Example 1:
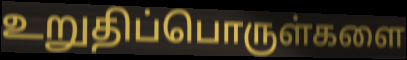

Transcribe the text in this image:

உறுதிப்பொருள்களை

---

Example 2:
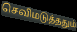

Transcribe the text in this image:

செவிமடுத்ததும்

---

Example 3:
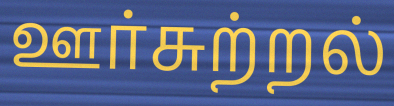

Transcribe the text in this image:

ஊர்சுற்றல்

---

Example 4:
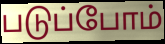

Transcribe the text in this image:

படுப்போம்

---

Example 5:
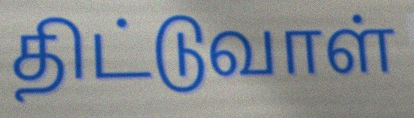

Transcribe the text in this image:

திட்டுவாள்